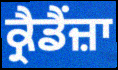
ਕ੍ਰੈਡੈਂਜ਼ਾ